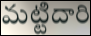
మట్టిదారి